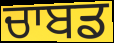
ਚਾਬਡ